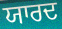
ਯਾਰਦ